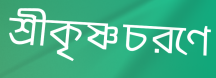
শ্রীকৃষ্ণচরণে